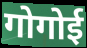
गोगोई